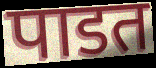
पाडत